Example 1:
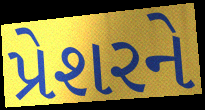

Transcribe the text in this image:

પ્રેશરને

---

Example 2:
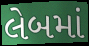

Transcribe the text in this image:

લેબમાં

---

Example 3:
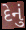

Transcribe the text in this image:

દેનું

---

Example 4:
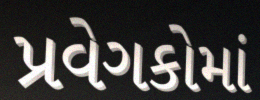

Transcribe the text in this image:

પ્રવેગકોમાં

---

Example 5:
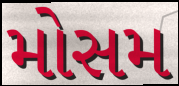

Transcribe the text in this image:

મોસમ